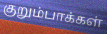
குறும்பாக்கள்